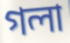
গলা